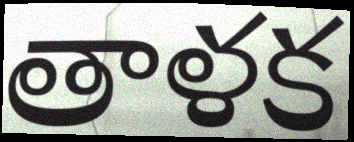
తాళక